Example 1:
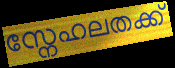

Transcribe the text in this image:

സ്നേഹലതക്ക്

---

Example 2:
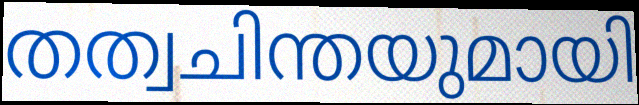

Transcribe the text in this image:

തത്വചിന്തയുമായി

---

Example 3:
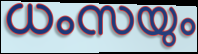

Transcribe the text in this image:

ധംസയും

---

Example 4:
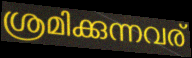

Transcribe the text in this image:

ശ്രമിക്കുന്നവര്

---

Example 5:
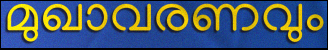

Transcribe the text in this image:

മുഖാവരണവും